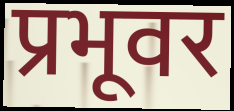
प्रभूवर